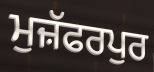
ਮੁਜ਼ੱਫਰਪੁਰ